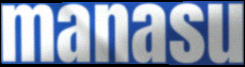
manasu